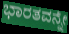
ಭಾರತವನ್ನೇ